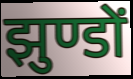
झुण्डों